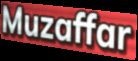
Muzaffar